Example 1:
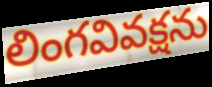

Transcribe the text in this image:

లింగవివక్షను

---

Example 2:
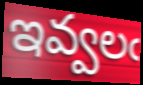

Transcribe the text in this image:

ఇవ్వలఁ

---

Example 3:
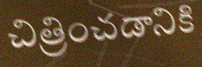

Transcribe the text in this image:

చిత్రించడానికి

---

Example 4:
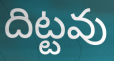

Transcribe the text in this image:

దిట్టవు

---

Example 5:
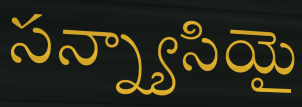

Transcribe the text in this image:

సన్న్యాసియై